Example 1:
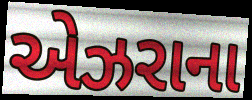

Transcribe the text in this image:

એઝરાના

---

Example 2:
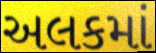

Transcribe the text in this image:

અલકમાં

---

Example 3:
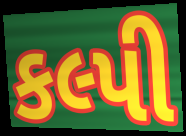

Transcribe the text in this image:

કલ્પી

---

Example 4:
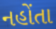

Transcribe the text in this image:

નહોંતા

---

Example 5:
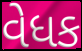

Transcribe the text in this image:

વેધક